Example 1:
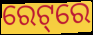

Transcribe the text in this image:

ରେଟ୍‌ରେ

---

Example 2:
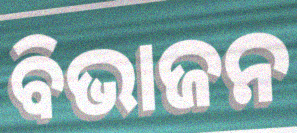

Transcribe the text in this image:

ବିଭାଜନ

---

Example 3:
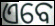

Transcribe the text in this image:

ଏବେ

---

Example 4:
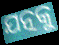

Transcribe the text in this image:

ଯତ୍ନକୁ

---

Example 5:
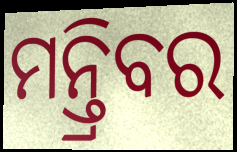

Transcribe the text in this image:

ମନ୍ତ୍ରିବର